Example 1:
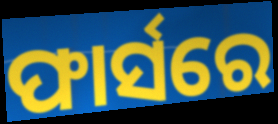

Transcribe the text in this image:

ଫାର୍ସରେ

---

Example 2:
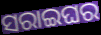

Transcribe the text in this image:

ସରାଇଘର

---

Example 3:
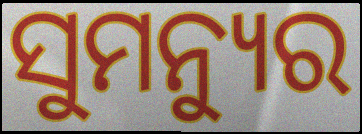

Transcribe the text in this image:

ସୁମନ୍ୟୁର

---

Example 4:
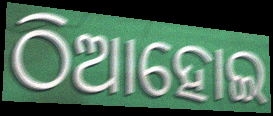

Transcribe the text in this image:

ଠିଆହୋଇ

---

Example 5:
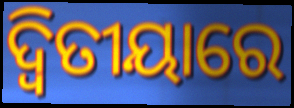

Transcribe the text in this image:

ଦ୍ୱିତୀୟାରେ